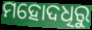
ମହୋଦଧିରୁ